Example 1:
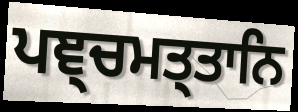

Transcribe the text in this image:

ਪਞ੍ਚਮਤ੍ਤਾਨਿ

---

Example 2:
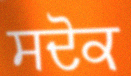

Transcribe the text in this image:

ਸਦੋਕ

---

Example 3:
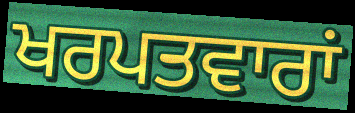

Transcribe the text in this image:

ਖਰਪਤਵਾਰਾਂ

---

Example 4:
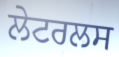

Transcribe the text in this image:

ਲੇਟਰਲਸ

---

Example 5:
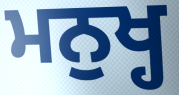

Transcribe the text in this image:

ਮਨੁਖ੍ਹ